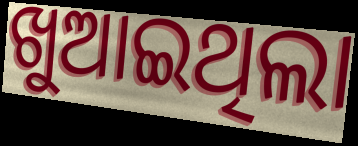
ଖୁଆଇଥିଲା